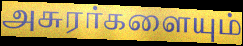
அசுரர்களையும்